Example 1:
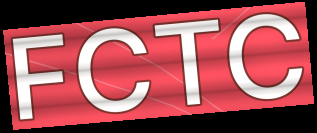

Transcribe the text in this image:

FCTC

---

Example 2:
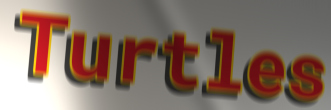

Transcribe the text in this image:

Turtles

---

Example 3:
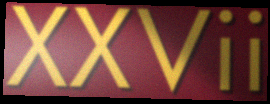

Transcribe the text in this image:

XXVii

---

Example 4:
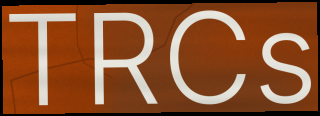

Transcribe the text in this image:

TRCs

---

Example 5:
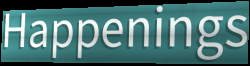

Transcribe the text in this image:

Happenings